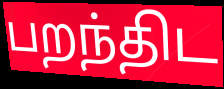
பறந்திட